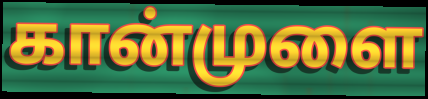
கான்முளை